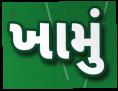
ખામું